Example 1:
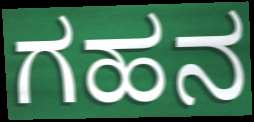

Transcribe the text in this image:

ಗಹನ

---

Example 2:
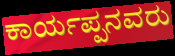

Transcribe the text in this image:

ಕಾರ್ಯಪ್ಪನವರು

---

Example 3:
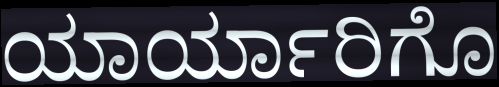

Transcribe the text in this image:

ಯಾರ್ಯಾರಿಗೊ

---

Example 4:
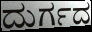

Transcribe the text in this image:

ದುರ್ಗದ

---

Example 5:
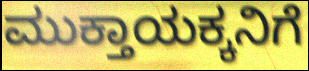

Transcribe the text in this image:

ಮುಕ್ತಾಯಕ್ಕನಿಗೆ